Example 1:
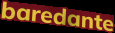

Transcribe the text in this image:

baredante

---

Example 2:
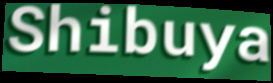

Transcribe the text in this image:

Shibuya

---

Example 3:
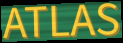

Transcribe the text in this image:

ATLAS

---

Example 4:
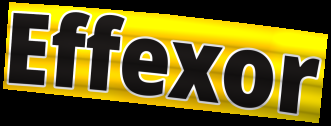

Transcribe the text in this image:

Effexor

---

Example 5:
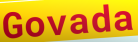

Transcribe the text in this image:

Govada